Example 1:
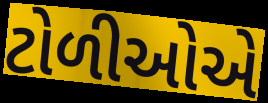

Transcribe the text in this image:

ટોળીઓએ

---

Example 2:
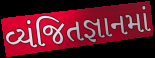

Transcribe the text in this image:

વ્યંજિતજ્ઞાનમાં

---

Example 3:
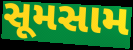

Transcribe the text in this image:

સૂમસામ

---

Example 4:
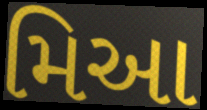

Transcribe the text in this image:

મિઆ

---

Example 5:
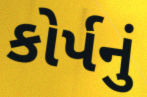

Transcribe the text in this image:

કોર્પનું